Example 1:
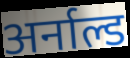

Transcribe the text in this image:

अर्नाल्ड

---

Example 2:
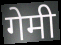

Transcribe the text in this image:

गेमी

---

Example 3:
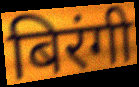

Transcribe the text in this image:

बिरंगी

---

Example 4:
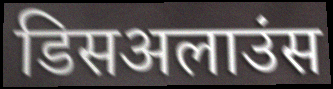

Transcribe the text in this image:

डिसअलाउंस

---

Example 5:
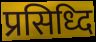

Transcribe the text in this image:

प्रसिध्दि